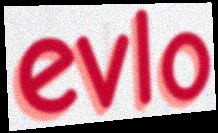
evlo